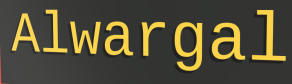
Alwargal